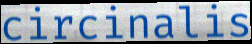
circinalis